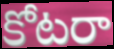
కోటరా